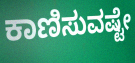
ಕಾಣಿಸುವಷ್ಟೇ